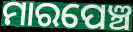
ମାରପେଞ୍ଚ